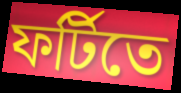
ফর্টিতে